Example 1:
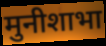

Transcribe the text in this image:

मुनीशाभा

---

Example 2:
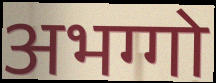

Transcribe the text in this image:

अभग्गो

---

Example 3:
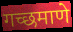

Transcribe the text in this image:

गच्छमाणे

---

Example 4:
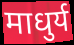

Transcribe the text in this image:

माधुर्य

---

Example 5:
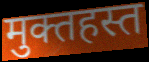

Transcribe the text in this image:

मुक्तहस्त